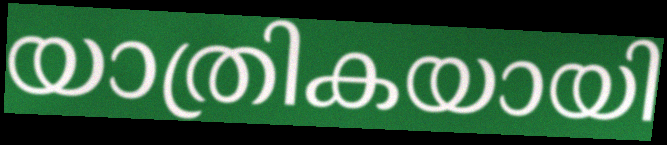
യാത്രികയായി